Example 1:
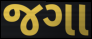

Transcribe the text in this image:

જગા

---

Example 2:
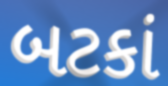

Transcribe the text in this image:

બટકાં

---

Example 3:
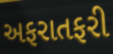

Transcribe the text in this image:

અફરાતફરી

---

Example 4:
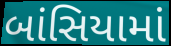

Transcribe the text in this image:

બાંસિયામાં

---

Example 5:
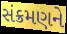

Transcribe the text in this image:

સંક્રમણને